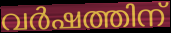
വർഷത്തിന്